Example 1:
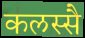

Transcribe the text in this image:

कलस्सै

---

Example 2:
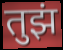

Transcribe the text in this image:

तुझं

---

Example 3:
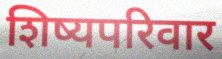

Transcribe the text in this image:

शिष्यपरिवार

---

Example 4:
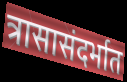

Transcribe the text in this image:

त्रासासंदर्भात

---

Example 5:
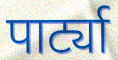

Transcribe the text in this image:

पार्ट्या